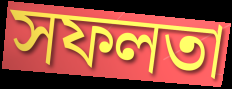
সফলতা